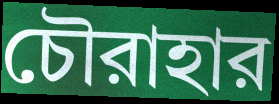
চৌরাহার